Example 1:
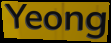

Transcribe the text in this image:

Yeong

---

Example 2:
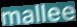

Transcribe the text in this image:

mallee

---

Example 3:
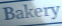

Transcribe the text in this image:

Bakery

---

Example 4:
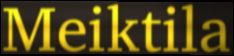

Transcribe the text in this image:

Meiktila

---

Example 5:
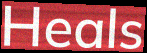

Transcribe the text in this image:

Heals